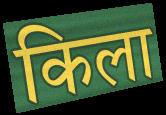
किला